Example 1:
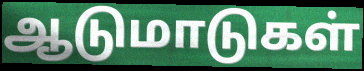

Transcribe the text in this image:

ஆடுமாடுகள்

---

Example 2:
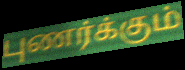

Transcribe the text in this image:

புணர்க்கும்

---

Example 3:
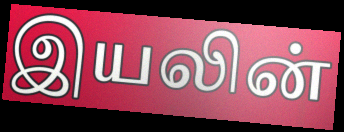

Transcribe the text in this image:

இயலின்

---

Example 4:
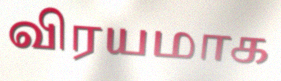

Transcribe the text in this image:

விரயமாக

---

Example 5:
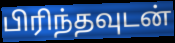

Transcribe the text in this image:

பிரிந்தவுடன்